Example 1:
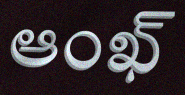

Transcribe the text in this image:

ఆంఖ్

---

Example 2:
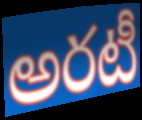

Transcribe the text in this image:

అరటీ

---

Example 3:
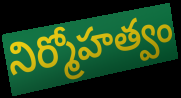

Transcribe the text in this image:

నిర్మోహత్వం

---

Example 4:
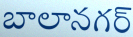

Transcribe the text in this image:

బాలానగర్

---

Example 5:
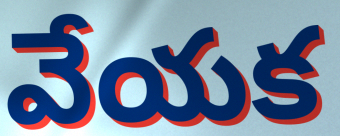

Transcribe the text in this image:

వేయక